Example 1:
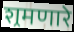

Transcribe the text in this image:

श्रमणारे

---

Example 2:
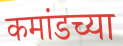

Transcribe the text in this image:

कमांडच्या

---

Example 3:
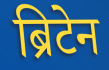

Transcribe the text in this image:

ब्रिटेन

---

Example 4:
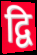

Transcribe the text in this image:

द्वि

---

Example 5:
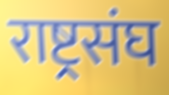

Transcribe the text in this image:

राष्ट्रसंघ